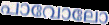
പാവോലോ